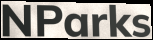
NParks